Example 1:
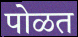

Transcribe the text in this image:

पोळत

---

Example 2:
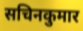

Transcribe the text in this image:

सचिनकुमार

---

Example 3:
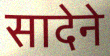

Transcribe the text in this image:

सादेने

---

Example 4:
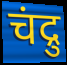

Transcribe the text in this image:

चंद्रु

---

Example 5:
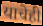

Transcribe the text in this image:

याचेही